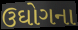
ઉઘોગના